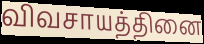
விவசாயத்தினை